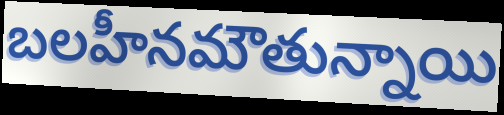
బలహీనమౌతున్నాయి